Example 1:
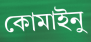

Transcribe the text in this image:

কোমাইনু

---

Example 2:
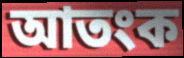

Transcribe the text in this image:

আতংক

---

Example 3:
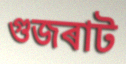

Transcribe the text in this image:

গুজৰাট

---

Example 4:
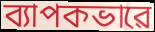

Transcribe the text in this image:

ব্যাপকভাৱে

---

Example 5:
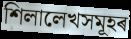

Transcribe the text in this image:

শিলালেখসমূহৰ